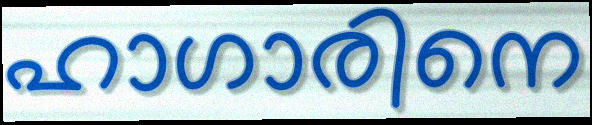
ഹാഗാരിനെ